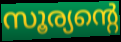
സൂര്യന്റെ